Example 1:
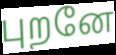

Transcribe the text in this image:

புறனே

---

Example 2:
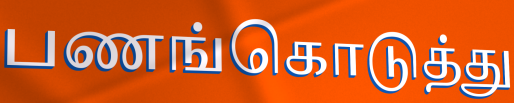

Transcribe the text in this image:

பணங்கொடுத்து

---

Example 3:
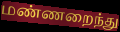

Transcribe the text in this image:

மண்ணறைந்து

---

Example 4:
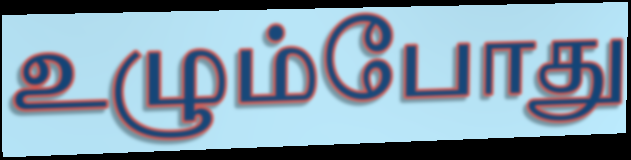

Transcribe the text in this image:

உழும்போது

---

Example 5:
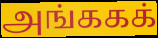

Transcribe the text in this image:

அங்ககக்